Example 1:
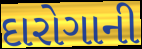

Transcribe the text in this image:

દારોગાની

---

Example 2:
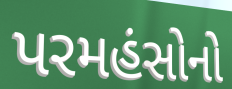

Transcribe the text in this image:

પરમહંસોનો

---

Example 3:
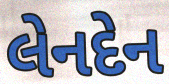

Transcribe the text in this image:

લેનદેન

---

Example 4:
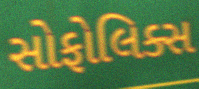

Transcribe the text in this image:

સોફોલિક્સ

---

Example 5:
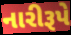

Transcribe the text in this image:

નારીરૂપે